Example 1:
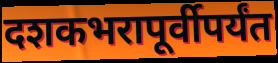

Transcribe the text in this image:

दशकभरापूर्वीपर्यंत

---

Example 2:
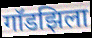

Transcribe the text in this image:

गॉडझिला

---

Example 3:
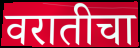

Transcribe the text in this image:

वरातीचा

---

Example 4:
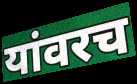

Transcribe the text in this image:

यांवरच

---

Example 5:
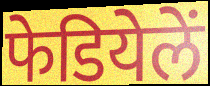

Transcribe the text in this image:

फेडियेलें